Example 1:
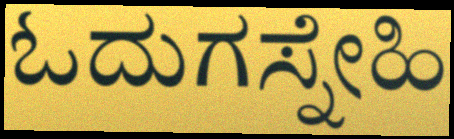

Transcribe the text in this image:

ಓದುಗಸ್ನೇಹಿ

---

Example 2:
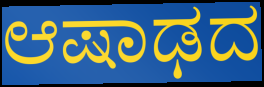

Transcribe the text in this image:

ಆಷಾಢದ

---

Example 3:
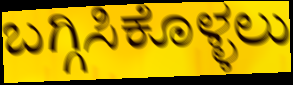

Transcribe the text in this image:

ಬಗ್ಗಿಸಿಕೊಳ್ಳಲು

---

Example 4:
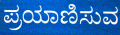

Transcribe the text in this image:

ಪ್ರಯಾಣಿಸುವ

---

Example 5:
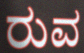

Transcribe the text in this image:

ರುವ